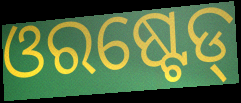
ଓରଷ୍ଟେଡ୍